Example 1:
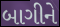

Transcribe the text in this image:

બાગીને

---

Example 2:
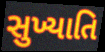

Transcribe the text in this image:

સુખ્યાતિ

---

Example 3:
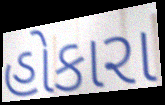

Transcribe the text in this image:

હોકારા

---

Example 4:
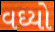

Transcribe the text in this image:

વઘ્યો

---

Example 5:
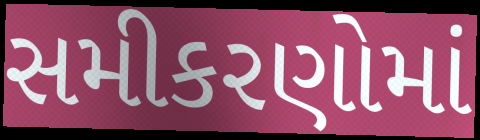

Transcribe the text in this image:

સમીકરણોમાં